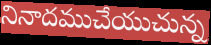
నినాదముచేయుచున్న